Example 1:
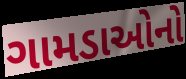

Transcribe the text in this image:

ગામડાઓનો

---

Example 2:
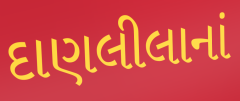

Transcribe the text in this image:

દાણલીલાનાં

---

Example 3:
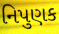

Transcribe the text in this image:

નિપુણક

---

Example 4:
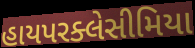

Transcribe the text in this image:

હાયપરક્લેસીમિયા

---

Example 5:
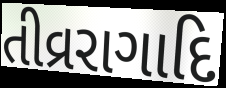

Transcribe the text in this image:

તીવ્રરાગાદિ